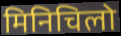
मिनिचिलो